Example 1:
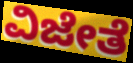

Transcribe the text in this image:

ವಿಜೇತೆ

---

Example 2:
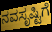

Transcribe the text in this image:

ನವಸೃಷ್ಟಿಗೆ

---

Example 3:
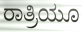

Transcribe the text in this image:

ರಾತ್ರಿಯೂ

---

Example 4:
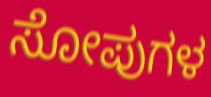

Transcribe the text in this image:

ಸೋಪುಗಳ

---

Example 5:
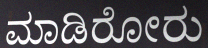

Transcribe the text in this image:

ಮಾಡಿರೋರು